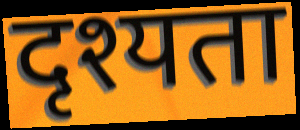
दृश्यता